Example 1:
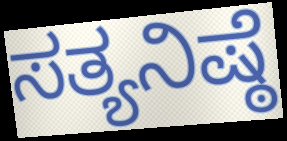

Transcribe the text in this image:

ಸತ್ಯನಿಷ್ಠೆ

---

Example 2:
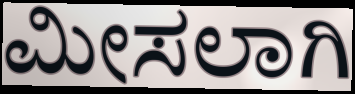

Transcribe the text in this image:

ಮೀಸಲಾಗಿ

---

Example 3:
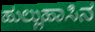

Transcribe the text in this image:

ಹುಲ್ಲುಹಾಸಿನ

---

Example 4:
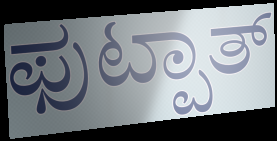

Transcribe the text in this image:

ಫುಟ್ಪಾತ್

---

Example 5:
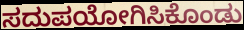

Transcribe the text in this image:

ಸದುಪಯೋಗಿಸಿಕೊಂಡು